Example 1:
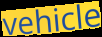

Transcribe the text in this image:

vehicle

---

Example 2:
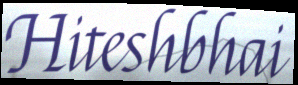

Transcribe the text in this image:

Hiteshbhai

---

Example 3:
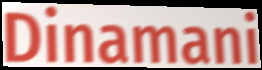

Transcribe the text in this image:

Dinamani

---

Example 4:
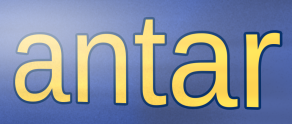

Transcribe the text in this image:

antar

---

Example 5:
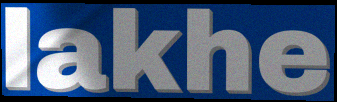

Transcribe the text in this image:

lakhe